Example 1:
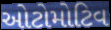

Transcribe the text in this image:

ઓટોમોટિવ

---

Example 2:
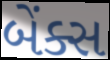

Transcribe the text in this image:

બેંક્સ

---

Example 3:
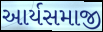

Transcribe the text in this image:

આર્યસમાજી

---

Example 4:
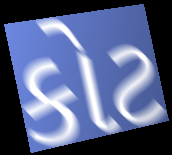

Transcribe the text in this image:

કોટ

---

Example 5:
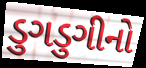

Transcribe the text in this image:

ડુગડુગીનો